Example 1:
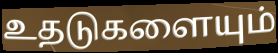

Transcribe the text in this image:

உதடுகளையும்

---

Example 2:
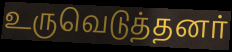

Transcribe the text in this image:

உருவெடுத்தனர்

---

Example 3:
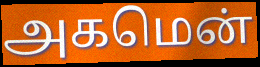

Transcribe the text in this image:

அகமென்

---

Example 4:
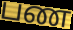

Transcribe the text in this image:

பண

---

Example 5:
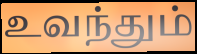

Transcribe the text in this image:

உவந்தும்